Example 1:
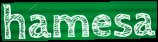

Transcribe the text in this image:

hamesa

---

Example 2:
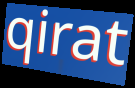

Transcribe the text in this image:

qirat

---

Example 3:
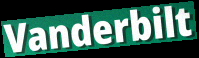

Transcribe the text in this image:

Vanderbilt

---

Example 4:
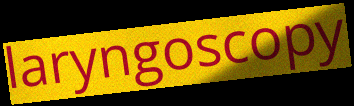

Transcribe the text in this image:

laryngoscopy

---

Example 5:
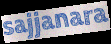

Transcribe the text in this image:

sajjanara